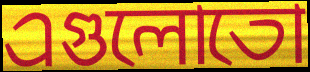
এগুলোতো